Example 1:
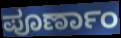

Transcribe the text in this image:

ಪೂರ್ಣಾಂ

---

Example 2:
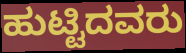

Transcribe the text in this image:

ಹುಟ್ಟಿದವರು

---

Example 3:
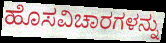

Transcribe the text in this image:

ಹೊಸವಿಚಾರಗಳನ್ನು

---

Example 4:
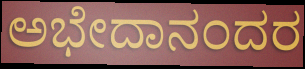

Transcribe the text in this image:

ಅಭೇದಾನಂದರ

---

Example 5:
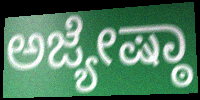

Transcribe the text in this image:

ಅಜ್ಯೇಷ್ಠಾ